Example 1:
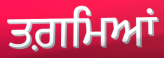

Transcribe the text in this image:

ਤਗ਼ਮਿਆਂ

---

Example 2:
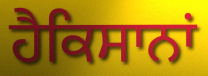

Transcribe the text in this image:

ਹੈਕਿਸਾਨਾਂ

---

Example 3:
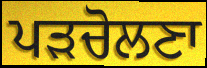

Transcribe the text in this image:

ਪੜਚੋਲਣਾ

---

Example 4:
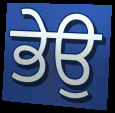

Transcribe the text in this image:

ਭੇਉ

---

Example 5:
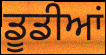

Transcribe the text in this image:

ਡੂਡੀਆਂ